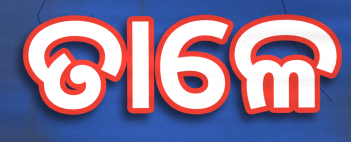
ତାଳେ